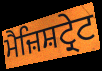
ਮੈਜ਼ਿਸ਼ਟ੍ਰੇਟ